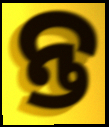
ନ୍ତ